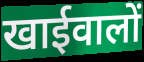
खाईवालों